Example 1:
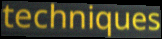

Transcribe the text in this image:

techniques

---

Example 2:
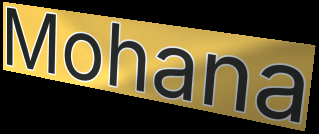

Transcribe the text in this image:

Mohana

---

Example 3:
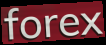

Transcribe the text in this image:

forex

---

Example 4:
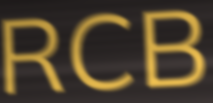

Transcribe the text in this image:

RCB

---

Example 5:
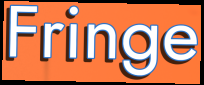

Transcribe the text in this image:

Fringe